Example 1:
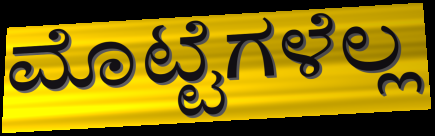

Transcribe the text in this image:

ಮೊಟ್ಟೆಗಳೆಲ್ಲ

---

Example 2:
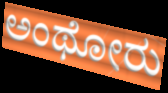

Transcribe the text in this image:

ಅಂಥೋರು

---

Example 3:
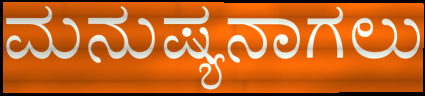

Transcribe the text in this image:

ಮನುಷ್ಯನಾಗಲು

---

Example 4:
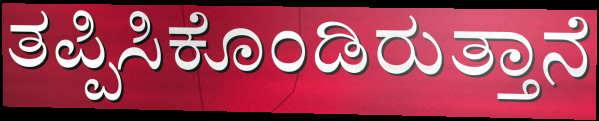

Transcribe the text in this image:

ತಪ್ಪಿಸಿಕೊಂಡಿರುತ್ತಾನೆ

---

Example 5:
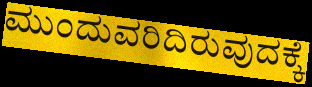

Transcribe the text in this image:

ಮುಂದುವರಿದಿರುವುದಕ್ಕೆ